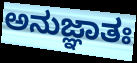
ಅನುಜ್ಞಾತಃ